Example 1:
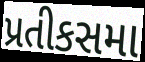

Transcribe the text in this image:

પ્રતીકસમા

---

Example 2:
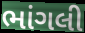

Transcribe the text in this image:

ભાંગલી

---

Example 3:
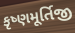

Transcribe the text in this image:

કૃષ્ણમૂર્તિજી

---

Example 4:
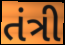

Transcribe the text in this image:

તંત્રી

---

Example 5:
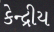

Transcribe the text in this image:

કેન્દ્રીય